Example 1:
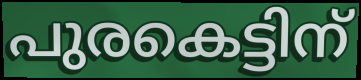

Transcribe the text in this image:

പുരകെട്ടിന്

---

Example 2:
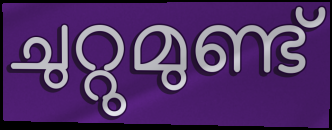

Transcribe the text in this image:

ചുറ്റുമുണ്ട്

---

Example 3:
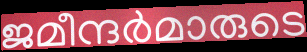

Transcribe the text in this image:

ജമീന്ദർമാരുടെ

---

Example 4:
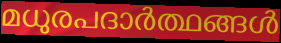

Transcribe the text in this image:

മധുരപദാർത്ഥങ്ങൾ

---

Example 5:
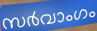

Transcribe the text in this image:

സർവാംഗം